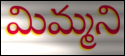
మిమ్మని